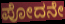
ಪೋದನೇ